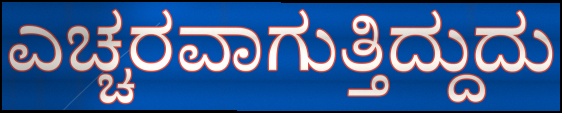
ಎಚ್ಚರವಾಗುತ್ತಿದ್ದುದು